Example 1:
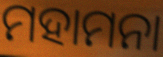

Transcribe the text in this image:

ମହାମନା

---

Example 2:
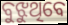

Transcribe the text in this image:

ବୁଝୁଥିବେ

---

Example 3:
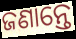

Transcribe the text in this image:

ଜଣାନ୍ତେ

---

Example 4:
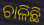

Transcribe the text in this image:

ଚାଳିଛି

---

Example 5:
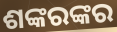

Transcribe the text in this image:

ଶଙ୍କରଙ୍କର